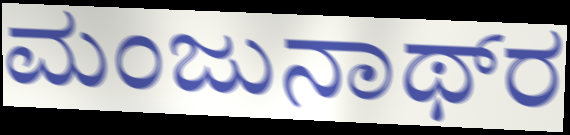
ಮಂಜುನಾಥ್‌ರ